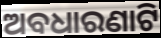
ଅବଧାରଣାଟି